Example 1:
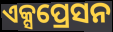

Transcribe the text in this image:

ଏକ୍ସପ୍ରେସନ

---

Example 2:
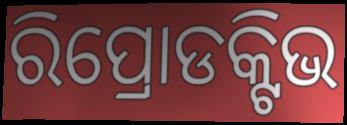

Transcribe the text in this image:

ରିପ୍ରୋଡକ୍ଟିଭ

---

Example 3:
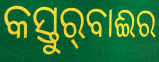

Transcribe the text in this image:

କସ୍ତୁର୍‍ବାଈର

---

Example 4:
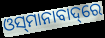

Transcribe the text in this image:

ଓସ୍‌ମାନାବାଦ୍‌ରେ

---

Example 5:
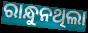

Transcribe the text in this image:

ରାନ୍ଧୁନଥିଲା